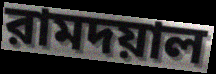
রামদয়াল